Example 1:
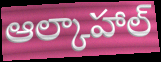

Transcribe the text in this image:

ఆల్కాహాల్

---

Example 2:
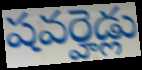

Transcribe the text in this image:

షవర్హెడ్లు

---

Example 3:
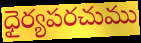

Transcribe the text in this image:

ధైర్యపరచుము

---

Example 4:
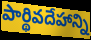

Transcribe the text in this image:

పార్థివదేహాన్ని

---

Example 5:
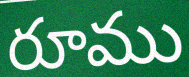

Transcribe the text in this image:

రూము